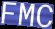
FMC